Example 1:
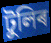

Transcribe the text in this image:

টুলিৰ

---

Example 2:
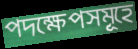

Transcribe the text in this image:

পদক্ষেপসমূহে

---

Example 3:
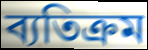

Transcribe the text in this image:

ব্যতিক্ৰম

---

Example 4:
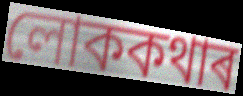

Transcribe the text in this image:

লোককথাৰ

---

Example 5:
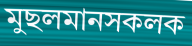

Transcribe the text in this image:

মুছলমানসকলক